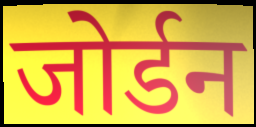
जोर्डन